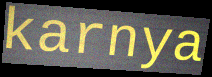
karnya